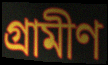
গ্ৰামীণ